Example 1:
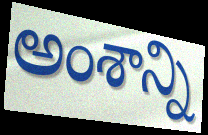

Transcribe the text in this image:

అంశాన్ని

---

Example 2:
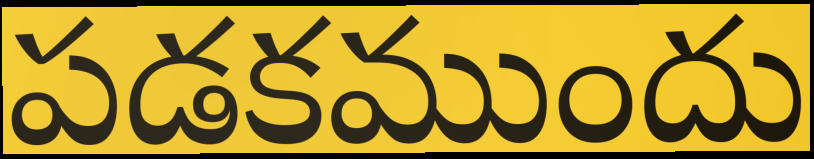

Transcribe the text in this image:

పడకముందు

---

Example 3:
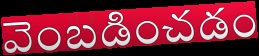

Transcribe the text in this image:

వెంబడించడం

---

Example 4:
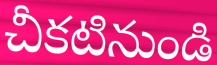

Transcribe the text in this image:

చీకటినుండి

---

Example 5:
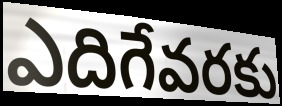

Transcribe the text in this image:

ఎదిగేవరకు